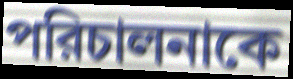
পরিচালনাকে